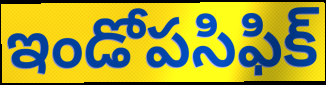
ఇండోపసిఫిక్